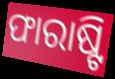
ଫାରାଷ୍ଟି